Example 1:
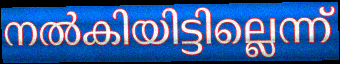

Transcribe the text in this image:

നൽകിയിട്ടില്ലെന്ന്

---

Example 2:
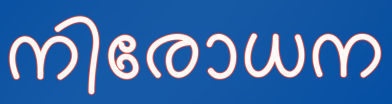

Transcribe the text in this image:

നിരോധന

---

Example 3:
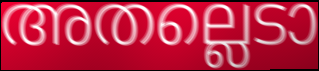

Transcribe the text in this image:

അതല്ലെടാ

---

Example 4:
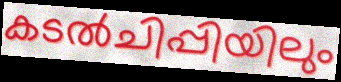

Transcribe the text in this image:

കടൽചിപ്പിയിലും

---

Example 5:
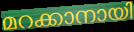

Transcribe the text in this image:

മറക്കാനായി